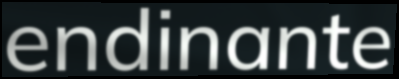
endinante